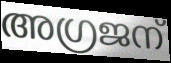
അഗ്രജന്